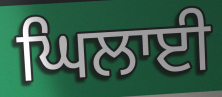
ਘਿਲਾਈ